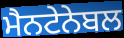
ਮੈਨਟੇਨੇਬਲ